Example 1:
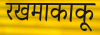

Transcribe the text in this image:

रखमाकाकू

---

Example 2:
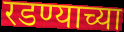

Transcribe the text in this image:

रडण्याच्या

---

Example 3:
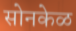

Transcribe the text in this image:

सोनकेळ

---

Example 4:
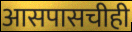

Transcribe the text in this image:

आसपासचीही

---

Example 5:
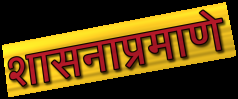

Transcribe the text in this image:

शासनाप्रमाणे